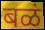
बळं